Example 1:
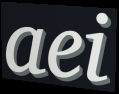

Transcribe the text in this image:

aei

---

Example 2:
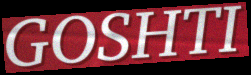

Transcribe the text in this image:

GOSHTI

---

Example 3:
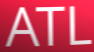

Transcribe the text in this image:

ATL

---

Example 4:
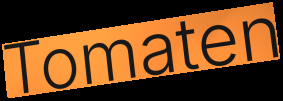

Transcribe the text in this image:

Tomaten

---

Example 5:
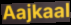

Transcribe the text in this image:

Aajkaal